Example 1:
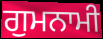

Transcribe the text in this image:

ਗੁਮਨਾਮੀ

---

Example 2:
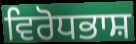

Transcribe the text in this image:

ਵਿਰੋਧਭਾਸ਼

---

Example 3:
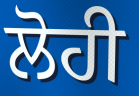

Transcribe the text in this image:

ਲੋਹੀ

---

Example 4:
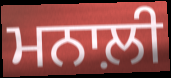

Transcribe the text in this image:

ਮਨਾਲ਼ੀ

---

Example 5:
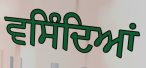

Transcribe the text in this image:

ਵਸਿੰਦਿਆਂ